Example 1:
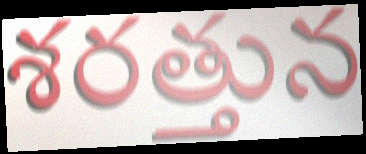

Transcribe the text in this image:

శరత్తున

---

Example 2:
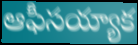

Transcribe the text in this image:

ఆఫీసయ్యాక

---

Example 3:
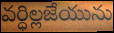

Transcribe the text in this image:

వర్ధిల్లజేయును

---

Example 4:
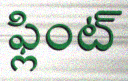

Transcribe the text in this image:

ఫ్లింట్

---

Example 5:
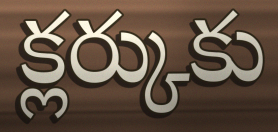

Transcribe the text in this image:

క్లర్కుకు